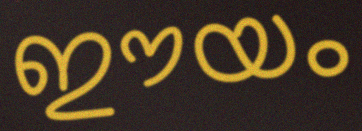
ഈയം